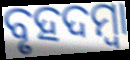
ବୃହଦମ୍ବା